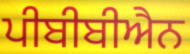
ਪੀਬੀਬੀਐਨ